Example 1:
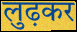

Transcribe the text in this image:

लुढ़कर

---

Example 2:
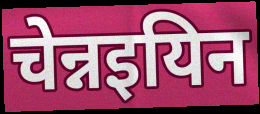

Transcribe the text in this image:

चेन्नइयिन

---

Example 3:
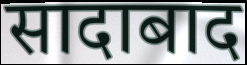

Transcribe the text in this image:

सादाबाद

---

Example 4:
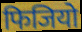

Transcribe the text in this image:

फिजियो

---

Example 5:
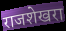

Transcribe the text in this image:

राजशेखरा